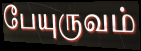
பேயுருவம்